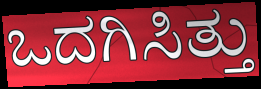
ಒದಗಿಸಿತ್ತು